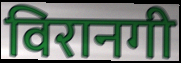
विरानगी